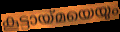
കൂട്ടായ്മയെയും